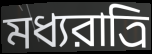
মধ্যরাত্রি